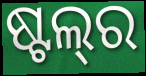
ଷ୍ଟଲ୍‌ର